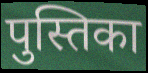
पुस्तिका